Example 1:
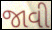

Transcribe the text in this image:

જાવી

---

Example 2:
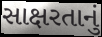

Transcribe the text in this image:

સાક્ષરતાનું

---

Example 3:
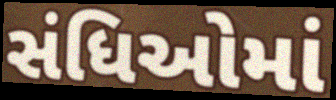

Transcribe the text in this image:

સંધિઓમાં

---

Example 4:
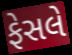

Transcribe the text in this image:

ફેસલે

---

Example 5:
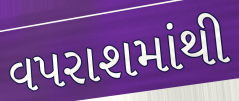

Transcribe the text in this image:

વપરાશમાંથી